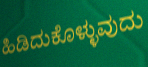
ಹಿಡಿದುಕೊಳ್ಳುವುದು